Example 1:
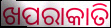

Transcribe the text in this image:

ଖପରାକାତି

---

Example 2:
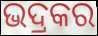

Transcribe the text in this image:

ଭଦ୍ରକର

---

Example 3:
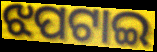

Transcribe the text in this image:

ଝପଟାଇ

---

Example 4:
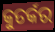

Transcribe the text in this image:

କୁତର୍କର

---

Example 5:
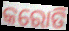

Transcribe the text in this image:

କରୋତି